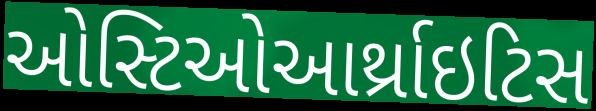
ઓસ્ટિઓઆર્થ્રાઇટિસ